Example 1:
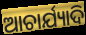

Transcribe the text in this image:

ଆଚାର୍ଯ୍ୟାଦି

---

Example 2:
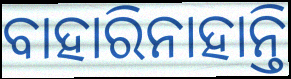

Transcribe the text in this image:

ବାହାରିନାହାନ୍ତି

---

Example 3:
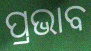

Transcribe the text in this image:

ପ୍ରଭାବ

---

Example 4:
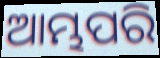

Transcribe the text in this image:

ଆମ୍ଭପରି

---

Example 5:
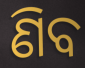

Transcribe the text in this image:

ଣିବ